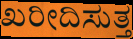
ಖರೀದಿಸುತ್ತ